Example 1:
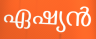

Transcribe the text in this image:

ഏഷ്യൻ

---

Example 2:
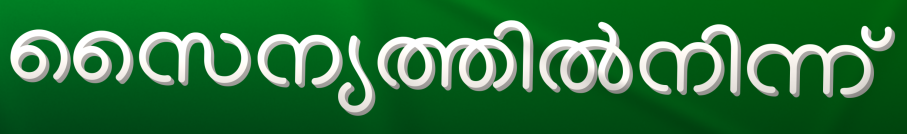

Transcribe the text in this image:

സൈന്യത്തിൽനിന്ന്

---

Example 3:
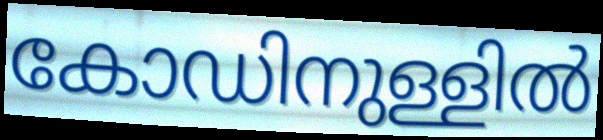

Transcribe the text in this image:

കോഡിനുള്ളിൽ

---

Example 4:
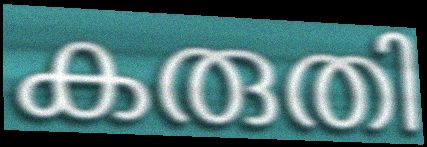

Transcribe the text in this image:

കരുതി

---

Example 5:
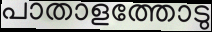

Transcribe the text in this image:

പാതാളത്തോടു